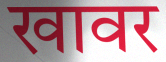
खावर